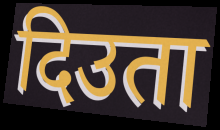
दिउता